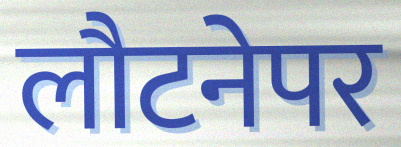
लौटनेपर